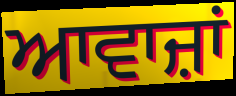
ਆਵਾਜ਼ਾਂ